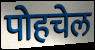
पोहचेल